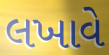
લખાવે